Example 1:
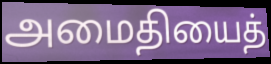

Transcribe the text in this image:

அமைதியைத்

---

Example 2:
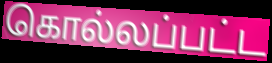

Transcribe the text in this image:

கொல்லப்பட்ட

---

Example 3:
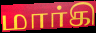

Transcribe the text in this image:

மார்கி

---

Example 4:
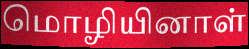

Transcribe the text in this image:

மொழியினாள்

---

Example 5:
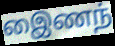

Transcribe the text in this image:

இைணந்